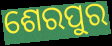
ଶେରପୁର